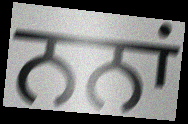
ਨਨਾਂ